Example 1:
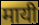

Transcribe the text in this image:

मायी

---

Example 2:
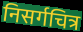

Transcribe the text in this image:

निसर्गचित्र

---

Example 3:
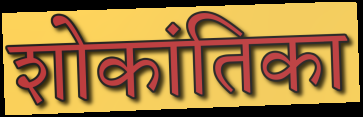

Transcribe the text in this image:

शोकांतिका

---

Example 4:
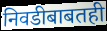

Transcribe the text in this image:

निवडीबाबतही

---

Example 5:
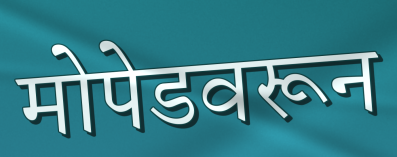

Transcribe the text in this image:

मोपेडवरून